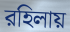
রহিলায়